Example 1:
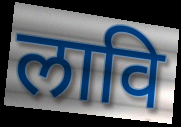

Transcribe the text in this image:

लावि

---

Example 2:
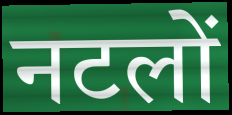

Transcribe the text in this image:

नटलों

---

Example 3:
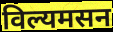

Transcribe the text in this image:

विल्यमसन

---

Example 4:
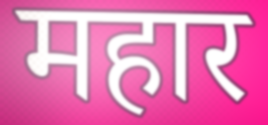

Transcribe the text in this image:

महार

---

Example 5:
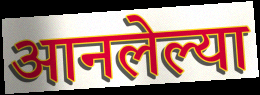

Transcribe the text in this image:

आनलेल्या